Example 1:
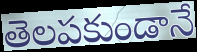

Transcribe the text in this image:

తెలపకుండానే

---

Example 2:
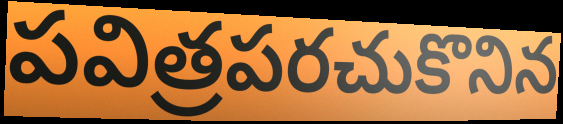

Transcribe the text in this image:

పవిత్రపరచుకొనిన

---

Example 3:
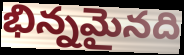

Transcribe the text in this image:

భిన్నమైనది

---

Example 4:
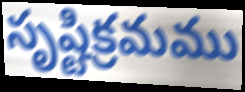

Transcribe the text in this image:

సృష్టిక్రమము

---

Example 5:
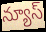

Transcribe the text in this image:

న్యూస్